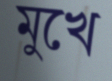
মুখে